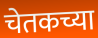
चेतकच्या